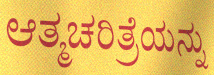
ಆತ್ಮಚರಿತ್ರೆಯನ್ನು